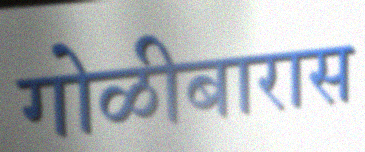
गोळीबारास